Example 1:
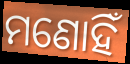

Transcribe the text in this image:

ମଣୋହିଁ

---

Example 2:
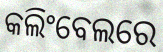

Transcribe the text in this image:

କଲିଂବେଲରେ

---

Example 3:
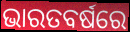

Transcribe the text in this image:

ଭାରତବର୍ଷରେ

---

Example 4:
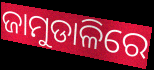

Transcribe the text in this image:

ଜାମୁଡାଳିରେ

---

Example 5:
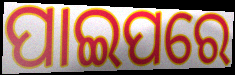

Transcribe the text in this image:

ପାଇପରେ